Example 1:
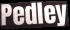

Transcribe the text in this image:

Pedley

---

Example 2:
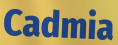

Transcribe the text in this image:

Cadmia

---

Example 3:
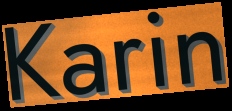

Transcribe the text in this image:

Karin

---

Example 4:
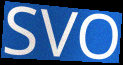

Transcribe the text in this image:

SVO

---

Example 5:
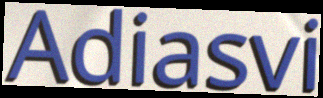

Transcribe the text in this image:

Adiasvi